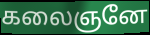
கலைஞனே